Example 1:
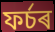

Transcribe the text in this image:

ফৰ্চৰ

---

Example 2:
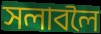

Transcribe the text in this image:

সলাবলৈ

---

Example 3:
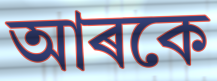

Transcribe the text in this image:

আৰকে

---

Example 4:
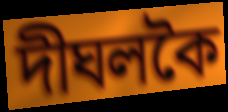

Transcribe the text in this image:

দীঘলকৈ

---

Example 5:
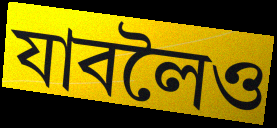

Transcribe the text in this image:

যাবলৈও